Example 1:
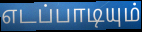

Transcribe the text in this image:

எடப்பாடியும்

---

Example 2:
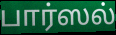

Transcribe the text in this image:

பார்ஸல்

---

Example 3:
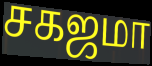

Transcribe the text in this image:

சகஜமா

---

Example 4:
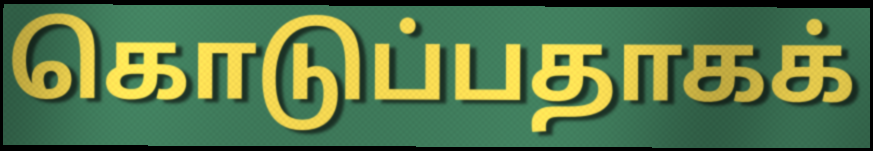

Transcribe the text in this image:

கொடுப்பதாகக்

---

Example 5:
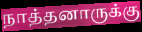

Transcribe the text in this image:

நாத்தனாருக்கு